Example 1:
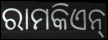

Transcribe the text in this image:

ରାମକିଏନ୍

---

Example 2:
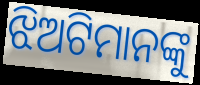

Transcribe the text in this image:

ଝିଅଟିମାନଙ୍କୁ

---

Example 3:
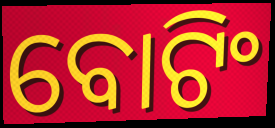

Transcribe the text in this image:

ବୋଟିଂ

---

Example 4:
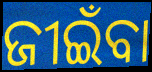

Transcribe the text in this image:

ଜୀଇଁବା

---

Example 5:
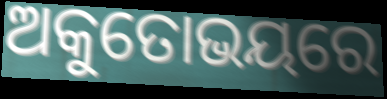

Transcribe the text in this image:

ଅକୁତୋଭୟରେ